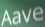
Aave